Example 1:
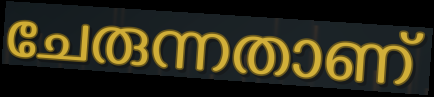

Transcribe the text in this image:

ചേരുന്നതാണ്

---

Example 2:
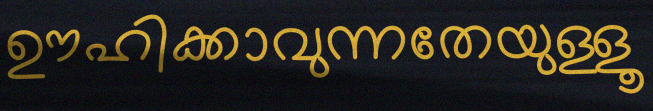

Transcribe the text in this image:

ഊഹിക്കാവുന്നതേയുള്ളൂ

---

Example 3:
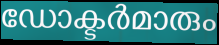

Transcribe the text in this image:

ഡോക്ടർമാരും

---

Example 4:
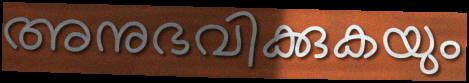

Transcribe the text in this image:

അനുഭവിക്കുകയും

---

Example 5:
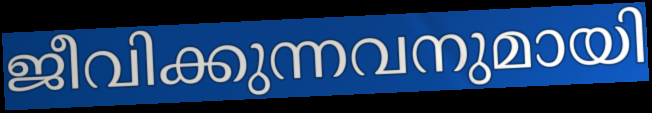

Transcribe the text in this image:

ജീവിക്കുന്നവനുമായി